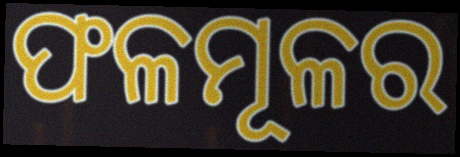
ଫଳମୂଳର